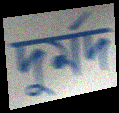
দুর্মদ